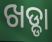
ଖଡ୍ଡା